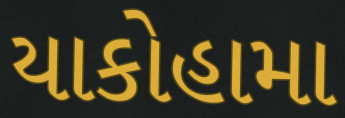
યાકોહામા